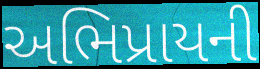
અભિપ્રાયની